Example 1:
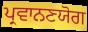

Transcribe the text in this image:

ਪ੍ਰਵਾਨਣਯੋਗ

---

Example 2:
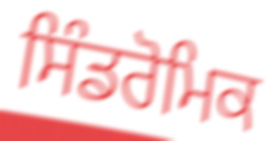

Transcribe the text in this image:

ਸਿੰਡਰੋਮਿਕ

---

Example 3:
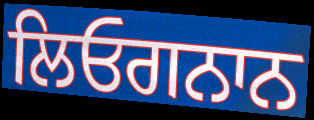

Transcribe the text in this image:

ਲਿਓਗਨਾਨ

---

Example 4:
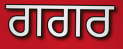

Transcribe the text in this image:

ਗਗਰ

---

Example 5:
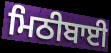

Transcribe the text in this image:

ਮਿਠੀਬਾਈ